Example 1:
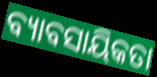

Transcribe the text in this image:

ବ୍ୟାବସାୟିକତା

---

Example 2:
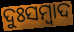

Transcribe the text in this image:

ଦୁଃସମ୍ୱାଦ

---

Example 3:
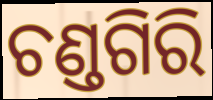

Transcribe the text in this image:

ଚଣ୍ଡଗିରି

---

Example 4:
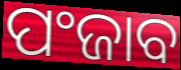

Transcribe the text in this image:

ପଂଜାବ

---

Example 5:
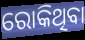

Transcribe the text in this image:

ରୋକିଥିବା